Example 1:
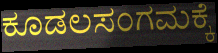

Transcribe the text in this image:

ಕೂಡಲಸಂಗಮಕ್ಕೆ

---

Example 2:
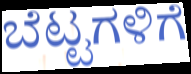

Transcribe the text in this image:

ಬೆಟ್ಟಗಳಿಗೆ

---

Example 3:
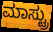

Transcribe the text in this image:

ಮಾಸ್ಟ್ರು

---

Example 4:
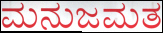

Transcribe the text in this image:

ಮನುಜಮತ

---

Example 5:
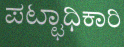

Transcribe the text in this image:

ಪಟ್ಟಾಧಿಕಾರಿ